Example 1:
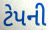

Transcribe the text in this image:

ટેપની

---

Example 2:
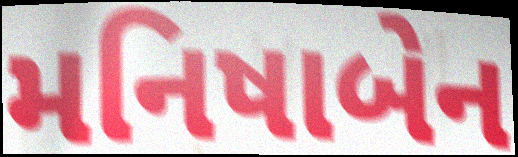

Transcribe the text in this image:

મનિષાબેન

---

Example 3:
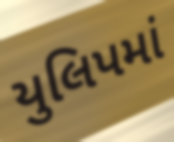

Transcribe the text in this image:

યુલિપમાં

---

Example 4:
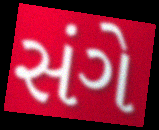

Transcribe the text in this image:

સંગે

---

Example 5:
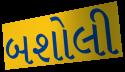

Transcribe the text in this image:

બશોલી